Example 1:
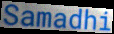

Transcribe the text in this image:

Samadhi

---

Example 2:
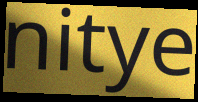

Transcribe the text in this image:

nitye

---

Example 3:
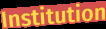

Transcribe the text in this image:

Institution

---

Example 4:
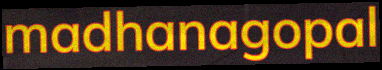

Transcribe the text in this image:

madhanagopal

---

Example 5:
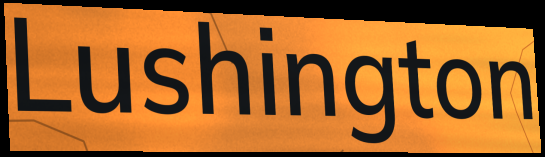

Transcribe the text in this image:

Lushington